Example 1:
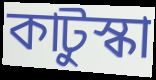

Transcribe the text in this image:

কাটুস্কা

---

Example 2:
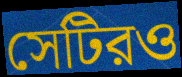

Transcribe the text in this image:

সেটিরও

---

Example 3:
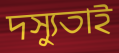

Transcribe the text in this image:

দস্যুতাই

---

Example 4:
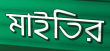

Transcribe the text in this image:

মাইতির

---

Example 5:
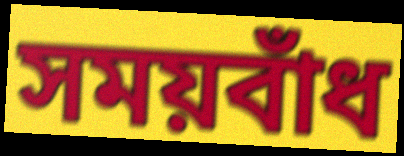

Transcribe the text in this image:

সময়বাঁধ